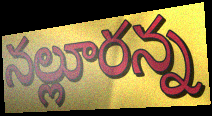
నల్లూరన్న